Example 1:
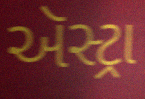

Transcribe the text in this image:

ઍસ્ટ્રા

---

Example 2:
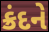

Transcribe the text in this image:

ક્રંદને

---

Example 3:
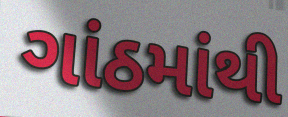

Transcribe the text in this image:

ગાંઠમાંથી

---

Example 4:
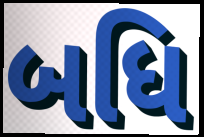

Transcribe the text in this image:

બધિ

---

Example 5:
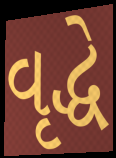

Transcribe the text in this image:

વૃદ્ધે